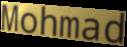
Mohmad